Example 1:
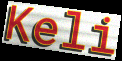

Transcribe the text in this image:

Keli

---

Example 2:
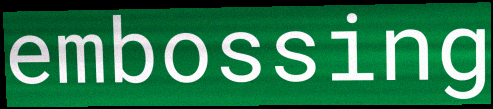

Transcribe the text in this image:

embossing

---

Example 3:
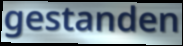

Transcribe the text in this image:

gestanden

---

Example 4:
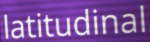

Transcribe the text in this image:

latitudinal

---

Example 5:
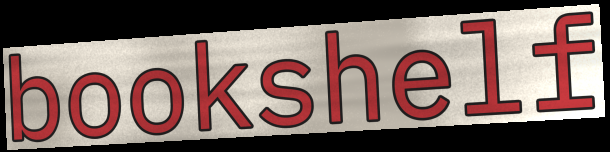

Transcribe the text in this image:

bookshelf